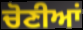
ਚੋਣੀਆਂ